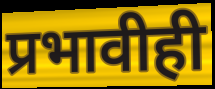
प्रभावीही